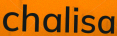
chalisa